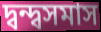
দ্বন্দ্বসমাস